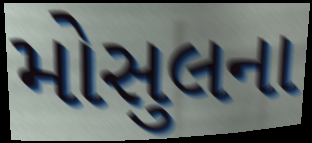
મોસુલના